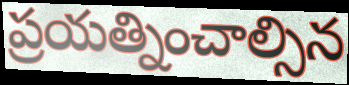
ప్రయత్నించాల్సిన